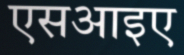
एसआइए